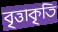
বৃত্তাকৃতি